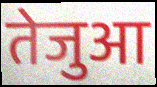
तेजुआ